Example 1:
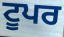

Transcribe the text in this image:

ਟੂਪਰ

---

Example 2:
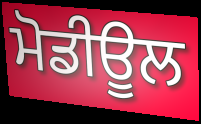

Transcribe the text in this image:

ਮੋਡੀਊਲ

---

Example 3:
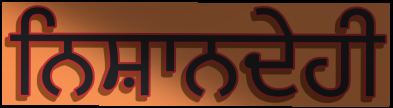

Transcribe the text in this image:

ਨਿਸ਼ਾਨਦੇਹੀ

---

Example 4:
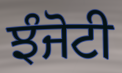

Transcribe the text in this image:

ਝੰਜੋਟੀ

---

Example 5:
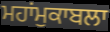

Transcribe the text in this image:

ਮਹਾਂਮੁਕਾਬਲਾ